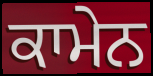
ਕਾਮੇਨ